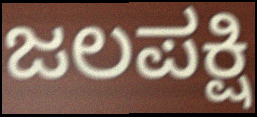
ಜಲಪಕ್ಷಿ